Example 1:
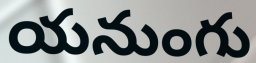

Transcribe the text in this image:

యనుంగు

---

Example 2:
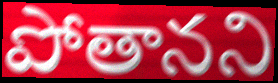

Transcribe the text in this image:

పోతానని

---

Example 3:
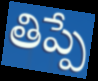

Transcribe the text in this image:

తిప్పే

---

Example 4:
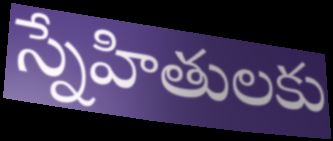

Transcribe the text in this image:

స్నేహితులకు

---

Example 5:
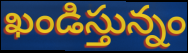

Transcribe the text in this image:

ఖండిస్తున్నం